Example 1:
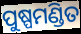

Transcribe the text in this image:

ପୁଷ୍ପମଣ୍ଡିତ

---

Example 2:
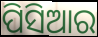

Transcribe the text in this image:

ପିସିଆର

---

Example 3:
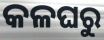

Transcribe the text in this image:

କଳଘରୁ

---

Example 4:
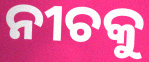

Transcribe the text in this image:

ନୀଚକୁ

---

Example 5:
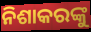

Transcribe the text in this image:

ନିଶାକରଙ୍କୁ